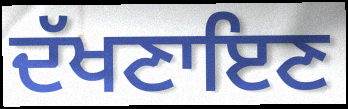
ਦੱਖਣਾਇਣ